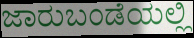
ಜಾರುಬಂಡೆಯಲ್ಲಿ